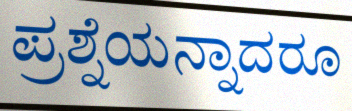
ಪ್ರಶ್ನೆಯನ್ನಾದರೂ